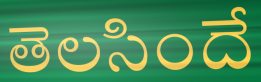
తెలసిందే